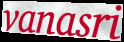
vanasri